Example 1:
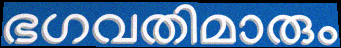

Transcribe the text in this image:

ഭഗവതിമാരും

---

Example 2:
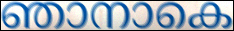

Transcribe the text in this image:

ഞാനാകെ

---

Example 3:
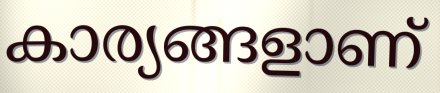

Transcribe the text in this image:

കാര്യങ്ങളാണ്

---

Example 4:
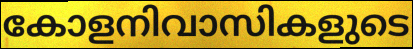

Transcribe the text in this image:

കോളനിവാസികളുടെ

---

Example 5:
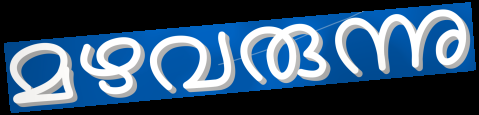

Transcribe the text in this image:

മഴവരുന്നു